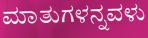
ಮಾತುಗಳನ್ನವಳು